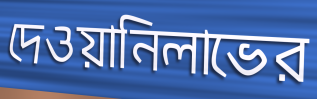
দেওয়ানিলাভের